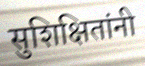
सुशिक्षितांनी